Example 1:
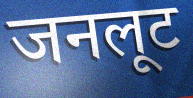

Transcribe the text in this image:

जनलूट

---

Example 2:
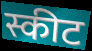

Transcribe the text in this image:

स्‍कीट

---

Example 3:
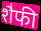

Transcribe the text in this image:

शैफी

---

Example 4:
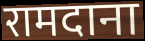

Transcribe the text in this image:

रामदाना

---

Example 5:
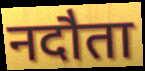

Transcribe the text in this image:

नदौता